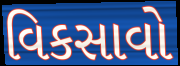
વિકસાવો